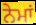
ਨੇਮਾਂ